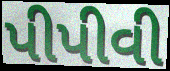
પીપીવી